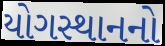
યોગસ્થાનનો